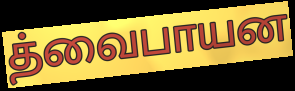
த்வைபாயன